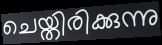
ചെയ്തിരിക്കുന്നു